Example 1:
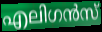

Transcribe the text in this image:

എലിഗൻസ്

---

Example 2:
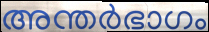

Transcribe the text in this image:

അന്തർഭാഗം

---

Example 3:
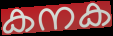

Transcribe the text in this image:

കനക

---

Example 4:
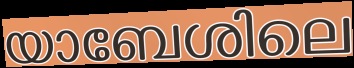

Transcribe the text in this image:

യാബേശിലെ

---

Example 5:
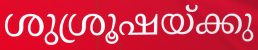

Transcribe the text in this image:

ശുശ്രൂഷയ്ക്കു